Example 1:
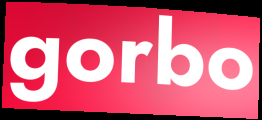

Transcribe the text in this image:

gorbo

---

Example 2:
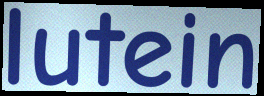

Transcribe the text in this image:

lutein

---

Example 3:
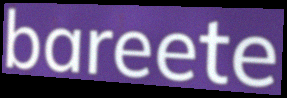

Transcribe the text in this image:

bareete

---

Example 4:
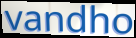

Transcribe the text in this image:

vandho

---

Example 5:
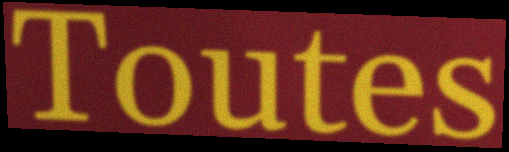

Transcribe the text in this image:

Toutes